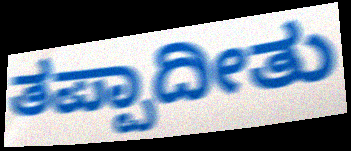
ತಪ್ಪಾದೀತು